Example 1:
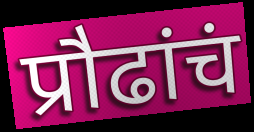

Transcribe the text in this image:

प्रौढांचं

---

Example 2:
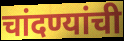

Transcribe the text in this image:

चांदण्यांची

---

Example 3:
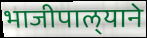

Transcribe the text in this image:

भाजीपाल्याने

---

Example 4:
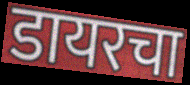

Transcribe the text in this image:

डायरचा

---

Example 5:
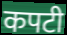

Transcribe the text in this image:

कपटी